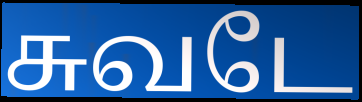
சுவடே